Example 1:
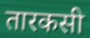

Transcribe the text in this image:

तारकसी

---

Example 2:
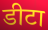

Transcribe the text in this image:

डीटा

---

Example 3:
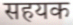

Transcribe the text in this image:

सहयक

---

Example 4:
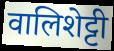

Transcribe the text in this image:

वालिशेट्टी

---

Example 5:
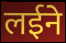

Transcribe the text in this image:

लईने